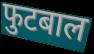
फुटबाल